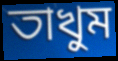
তাখুম